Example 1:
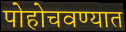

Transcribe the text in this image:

पोहोचवण्यात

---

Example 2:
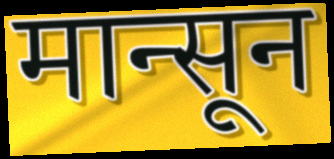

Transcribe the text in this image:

मान्सून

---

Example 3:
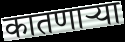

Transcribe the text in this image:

कातणाऱ्या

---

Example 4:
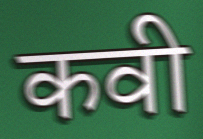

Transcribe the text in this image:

कवी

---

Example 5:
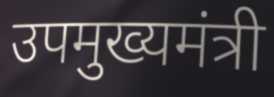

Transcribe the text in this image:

उपमुख्यमंत्री